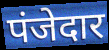
पंजेदार